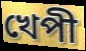
খেপী